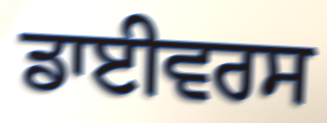
ਡਾਈਵਰਸ